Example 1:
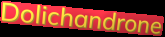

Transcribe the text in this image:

Dolichandrone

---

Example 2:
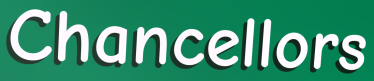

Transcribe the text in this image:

Chancellors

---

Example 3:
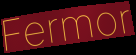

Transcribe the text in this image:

Fermor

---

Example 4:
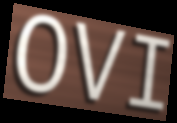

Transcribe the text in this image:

OVI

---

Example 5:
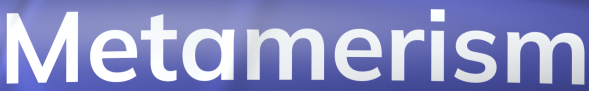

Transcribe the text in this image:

Metamerism